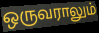
ஒருவராலும்